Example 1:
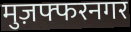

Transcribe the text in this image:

मुज़फ्फरनगर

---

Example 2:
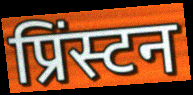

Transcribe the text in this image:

प्रिंस्टन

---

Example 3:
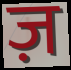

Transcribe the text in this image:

ज़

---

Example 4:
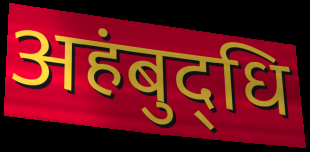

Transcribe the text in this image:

अहंबुद्धि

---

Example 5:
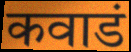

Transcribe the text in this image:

कवाडं